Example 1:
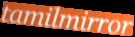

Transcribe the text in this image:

tamilmirror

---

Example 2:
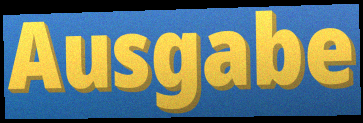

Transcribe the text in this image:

Ausgabe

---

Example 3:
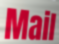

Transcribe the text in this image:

Mail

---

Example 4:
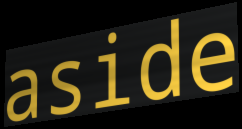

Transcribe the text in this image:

aside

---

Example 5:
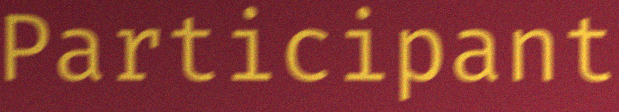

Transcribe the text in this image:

Participant